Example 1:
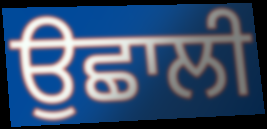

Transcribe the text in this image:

ਉਛਾਲੀ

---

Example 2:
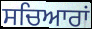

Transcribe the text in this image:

ਸਚਿਆਰਾਂ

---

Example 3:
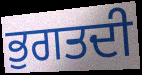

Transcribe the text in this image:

ਭੁਗਤਦੀ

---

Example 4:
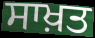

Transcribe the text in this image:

ਸਾਖ਼ਤ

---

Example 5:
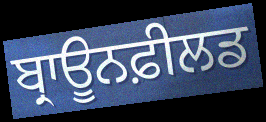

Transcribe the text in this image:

ਬ੍ਰਾਊਨਫ਼ੀਲਡ